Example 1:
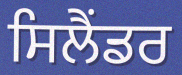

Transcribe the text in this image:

ਸਿਲੈਂਡਰ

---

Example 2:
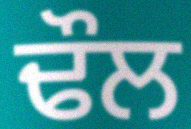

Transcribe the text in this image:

ਢੌਲ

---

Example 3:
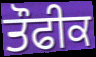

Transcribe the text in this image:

ਤੌਫੀਕ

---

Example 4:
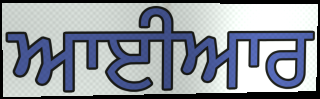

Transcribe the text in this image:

ਆਈਆਰ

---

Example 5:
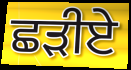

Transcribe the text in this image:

ਛੜੀਏ